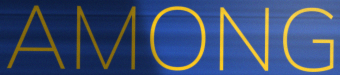
AMONG